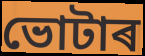
ভোটাৰ